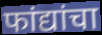
फांद्यांचा